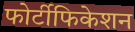
फोर्टीफिकेशन